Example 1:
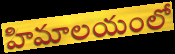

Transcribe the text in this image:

హిమాలయంలో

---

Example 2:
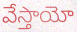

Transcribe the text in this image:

వేస్తాయో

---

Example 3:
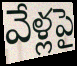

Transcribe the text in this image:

వేళ్లపై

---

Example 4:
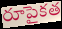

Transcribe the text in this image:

రూపైకత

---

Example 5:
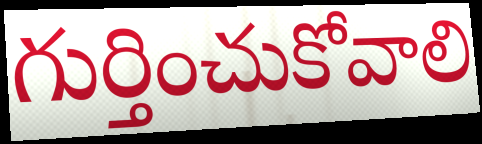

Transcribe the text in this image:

గుర్తించుకోవాలి